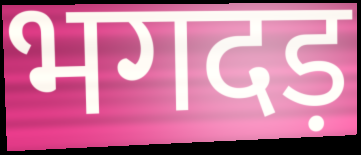
भगदड़